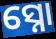
ସ୍ନୋ